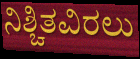
ನಿಶ್ಚಿತವಿರಲು